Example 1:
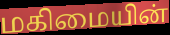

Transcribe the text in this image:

மகிமையின்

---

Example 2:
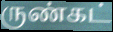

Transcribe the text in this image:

ருண்கட்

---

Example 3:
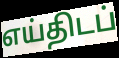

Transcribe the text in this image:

எய்திடப்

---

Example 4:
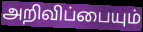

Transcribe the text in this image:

அறிவிப்பையும்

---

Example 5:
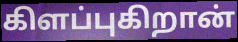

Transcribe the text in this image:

கிளப்புகிறான்